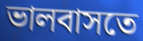
ভালবাসতে